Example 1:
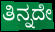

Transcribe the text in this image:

ತಿನ್ನದೇ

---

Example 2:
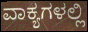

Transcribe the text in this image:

ವಾಕ್ಯಗಳಲ್ಲಿ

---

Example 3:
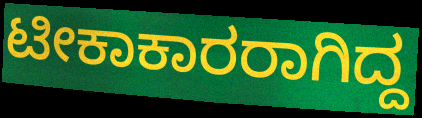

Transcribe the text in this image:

ಟೀಕಾಕಾರರಾಗಿದ್ದ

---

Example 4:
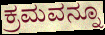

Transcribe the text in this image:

ಕ್ರಮವನ್ನೂ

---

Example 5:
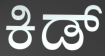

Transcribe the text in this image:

ಕಿಡ್